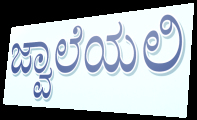
ಜ್ವಾಲೆಯಲಿ